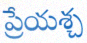
ప్రేయశ్చ